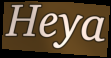
Heya